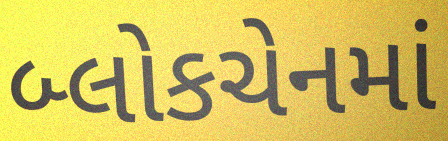
બ્લોકચેનમાં